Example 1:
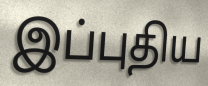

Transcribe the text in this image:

இப்புதிய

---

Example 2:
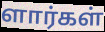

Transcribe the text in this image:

ளார்கள்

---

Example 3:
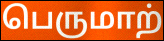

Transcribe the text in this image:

பெருமாற்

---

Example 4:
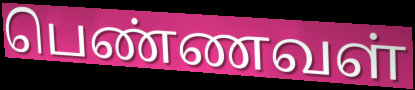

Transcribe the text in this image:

பெண்ணவள்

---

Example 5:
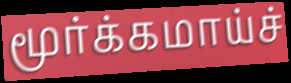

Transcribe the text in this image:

மூர்க்கமாய்ச்